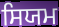
ਸਿਯਮ